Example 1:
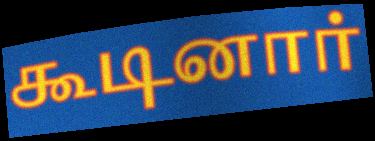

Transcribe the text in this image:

கூடினார்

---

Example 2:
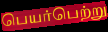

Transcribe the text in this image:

பெயர்பெற்று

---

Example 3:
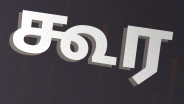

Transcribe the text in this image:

கூர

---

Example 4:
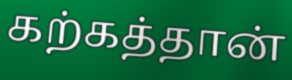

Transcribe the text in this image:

கற்கத்தான்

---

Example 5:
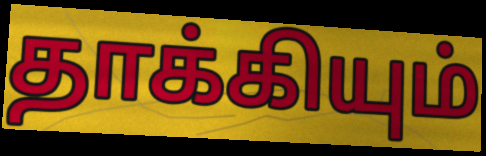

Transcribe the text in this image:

தாக்கியும்